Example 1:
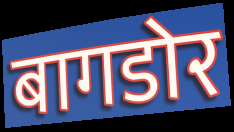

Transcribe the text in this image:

बागडोर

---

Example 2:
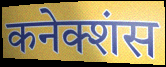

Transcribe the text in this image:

कनेक्शंस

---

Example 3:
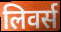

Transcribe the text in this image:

लिवर्स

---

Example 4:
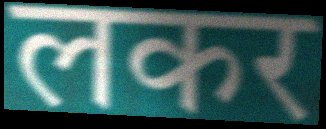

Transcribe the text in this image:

लकर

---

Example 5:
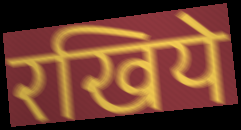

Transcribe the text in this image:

रखिये